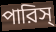
পারিস্